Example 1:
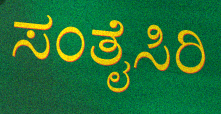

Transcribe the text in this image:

ಸಂತೈಸಿರಿ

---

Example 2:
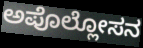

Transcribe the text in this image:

ಅಪೊಲ್ಲೋಸನ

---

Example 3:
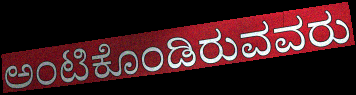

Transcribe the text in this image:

ಅಂಟಿಕೊಂಡಿರುವವರು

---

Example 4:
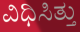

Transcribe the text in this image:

ವಿಧಿಸಿತ್ತು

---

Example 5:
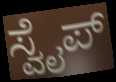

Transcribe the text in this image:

ಸ್ವೈಪ್